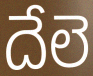
దేలె